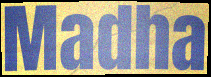
Madha